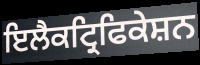
ਇਲੈਕਟ੍ਰਿਫਿਕੇਸ਼ਨ